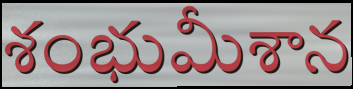
శంభుమీశాన